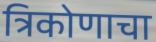
त्रिकोणाचा